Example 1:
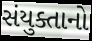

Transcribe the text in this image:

સંયુક્તાનો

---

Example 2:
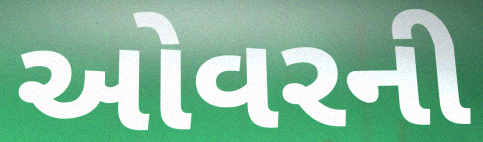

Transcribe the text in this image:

ઓવરની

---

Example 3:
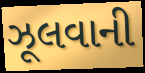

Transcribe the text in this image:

ઝૂલવાની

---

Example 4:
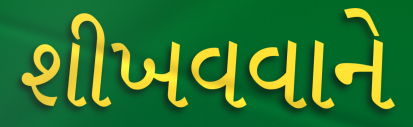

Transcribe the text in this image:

શીખવવાને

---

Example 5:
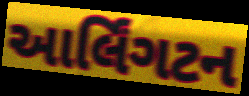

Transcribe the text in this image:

આર્લિંગટન